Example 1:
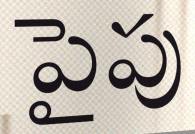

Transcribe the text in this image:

పైపు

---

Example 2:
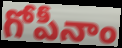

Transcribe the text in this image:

గోపీనాం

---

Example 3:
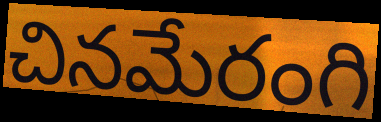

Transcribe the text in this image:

చినమేరంగి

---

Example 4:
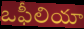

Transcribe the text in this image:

ఒఫీలియా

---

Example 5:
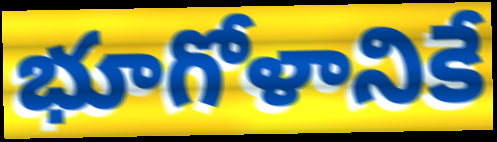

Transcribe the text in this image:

భూగోళానికే